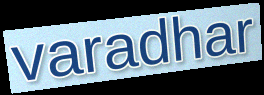
varadhar